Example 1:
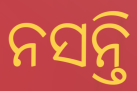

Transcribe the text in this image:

ନସନ୍ତି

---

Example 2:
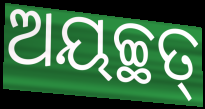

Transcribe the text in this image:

ଅୟଚ୍ଛତ୍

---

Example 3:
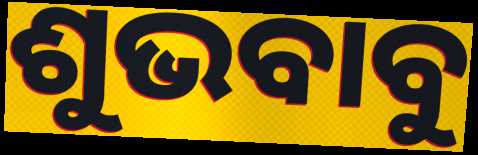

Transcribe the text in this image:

ଶୁଭବାବୁ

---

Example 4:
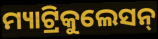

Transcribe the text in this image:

ମ୍ୟାଟ୍ରିକୁଲେସନ୍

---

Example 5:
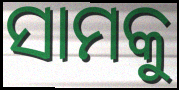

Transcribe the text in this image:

ସାମକୁ